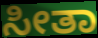
ಸೀತಾ